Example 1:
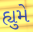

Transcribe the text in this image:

હ્યુમે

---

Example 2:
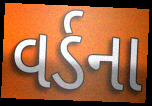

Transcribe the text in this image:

વર્ડના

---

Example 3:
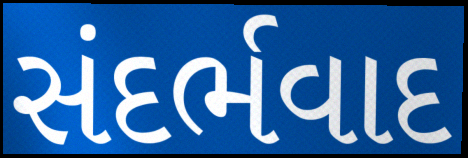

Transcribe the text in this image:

સંદર્ભવાદ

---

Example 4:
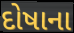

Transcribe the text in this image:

દોષાના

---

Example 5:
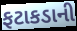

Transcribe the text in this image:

ફટાકડાની